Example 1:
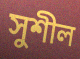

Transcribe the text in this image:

সুশীল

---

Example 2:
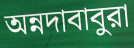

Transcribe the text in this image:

অন্নদাবাবুরা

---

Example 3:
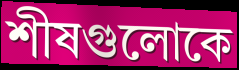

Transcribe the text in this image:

শীষগুলোকে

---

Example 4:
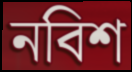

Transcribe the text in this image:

নবিশ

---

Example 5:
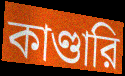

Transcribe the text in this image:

কাণ্ডারি